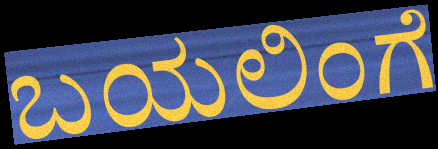
ಬಯಲಿಂಗೆ